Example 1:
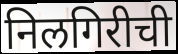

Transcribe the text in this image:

निलगिरीची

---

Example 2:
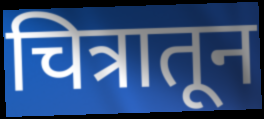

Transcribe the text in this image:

चित्रातून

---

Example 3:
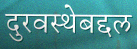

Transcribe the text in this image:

दुरवस्थेबद्दल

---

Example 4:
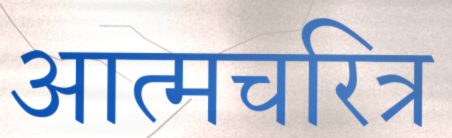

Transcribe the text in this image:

आत्मचरित्र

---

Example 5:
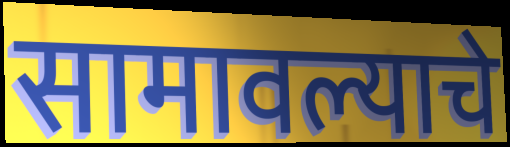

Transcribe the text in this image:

सामावल्याचे